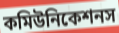
কমিউনিকেশনস